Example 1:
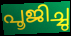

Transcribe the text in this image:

പൂജിച്ചു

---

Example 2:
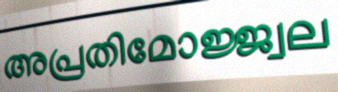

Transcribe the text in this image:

അപ്രതിമോജ്ജ്വല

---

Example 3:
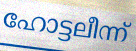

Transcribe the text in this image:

ഹോട്ടലീന്ന്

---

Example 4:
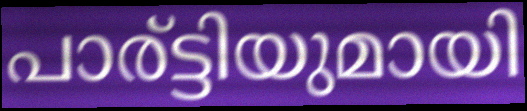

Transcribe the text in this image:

പാര്ട്ടിയുമായി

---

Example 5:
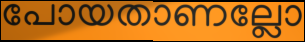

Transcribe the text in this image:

പോയതാണല്ലോ